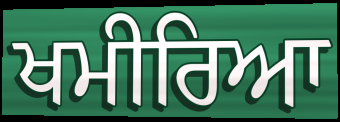
ਖਮੀਰਿਆ